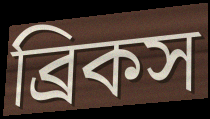
ব্রিকস